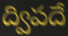
ద్విపదే